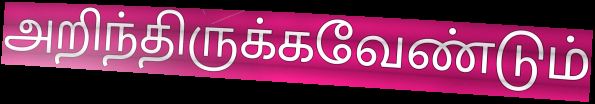
அறிந்திருக்கவேண்டும்